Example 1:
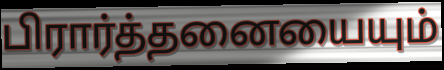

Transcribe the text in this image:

பிரார்த்தனையையும்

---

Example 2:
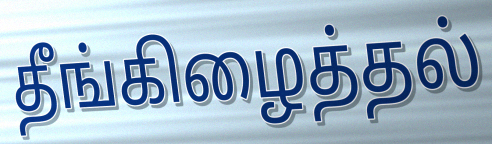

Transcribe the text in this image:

தீங்கிழைத்தல்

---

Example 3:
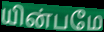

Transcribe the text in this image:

யின்பமே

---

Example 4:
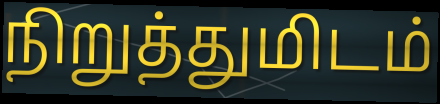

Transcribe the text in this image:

நிறுத்துமிடம்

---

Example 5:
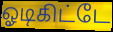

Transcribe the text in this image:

ஓடிகிட்டே